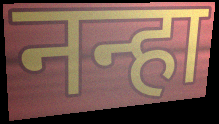
नन्हा